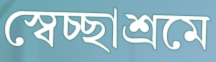
স্বেচ্ছাশ্রমে